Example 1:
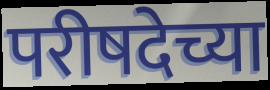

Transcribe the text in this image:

परीषदेच्या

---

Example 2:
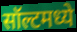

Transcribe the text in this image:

सॉल्टमध्ये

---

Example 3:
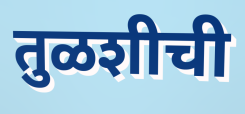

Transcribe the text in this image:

तुळशीची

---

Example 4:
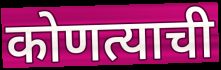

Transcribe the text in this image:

कोणत्याची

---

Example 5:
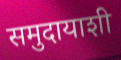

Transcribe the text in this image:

समुदायाशी